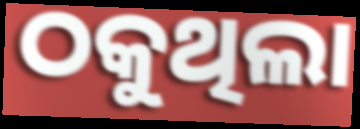
ଠକୁଥିଲା